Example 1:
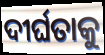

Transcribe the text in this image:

ଦୀର୍ଘତାକୁ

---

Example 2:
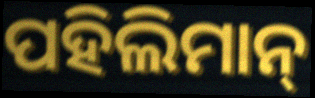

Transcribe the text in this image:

ପହିଲିମାନ୍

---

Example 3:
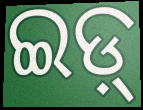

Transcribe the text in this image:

ଇଡ଼୍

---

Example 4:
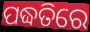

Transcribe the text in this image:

ପଦ୍ଧତିରେ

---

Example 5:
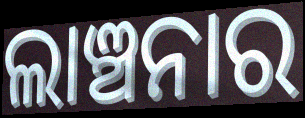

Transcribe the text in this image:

ଲାଞ୍ଚନାର